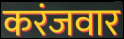
करंजवार